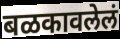
बळकावलेलं